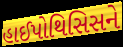
હાઈપોથિસિસને